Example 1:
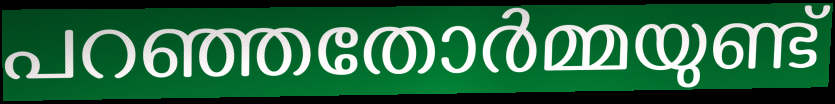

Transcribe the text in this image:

പറഞ്ഞതോർമ്മയുണ്ട്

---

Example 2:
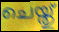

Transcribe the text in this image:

ചെയ്തു്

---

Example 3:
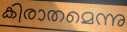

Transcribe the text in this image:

കിരാതമെന്നു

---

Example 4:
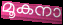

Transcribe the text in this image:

മൂകനാ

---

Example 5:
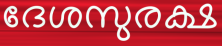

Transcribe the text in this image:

ദേശസുരക്ഷ